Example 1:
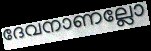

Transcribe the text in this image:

ദേവനാണല്ലോ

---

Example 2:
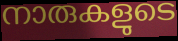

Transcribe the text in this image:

നാരുകളുടെ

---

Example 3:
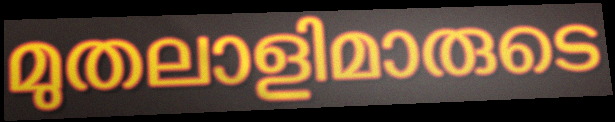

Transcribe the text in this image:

മുതലാളിമാരുടെ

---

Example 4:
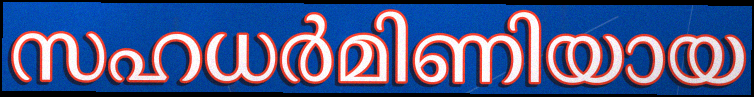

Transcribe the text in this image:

സഹധർമിണിയായ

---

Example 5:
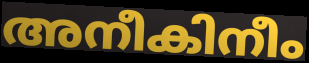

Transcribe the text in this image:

അനീകിനീം